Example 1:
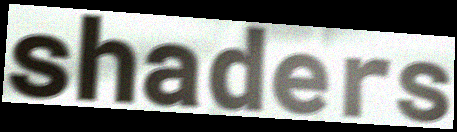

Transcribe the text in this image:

shaders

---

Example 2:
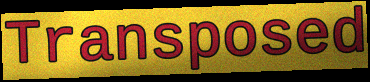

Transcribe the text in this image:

Transposed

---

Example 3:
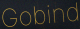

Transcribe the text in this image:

Gobind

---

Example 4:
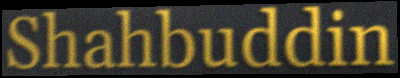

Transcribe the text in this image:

Shahbuddin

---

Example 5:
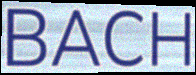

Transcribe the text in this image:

BACH